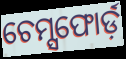
ଚେମ୍ସଫୋର୍ଡ଼